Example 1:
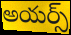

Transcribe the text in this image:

అయర్స్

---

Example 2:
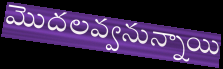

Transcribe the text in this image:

మొదలవ్వనున్నాయి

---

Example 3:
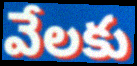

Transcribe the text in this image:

వేలకు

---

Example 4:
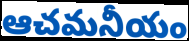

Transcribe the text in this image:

ఆచమనీయం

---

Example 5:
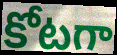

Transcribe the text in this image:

కోటగా